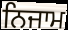
ਨਿਜਾਮ